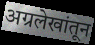
अग्रलेखांतून